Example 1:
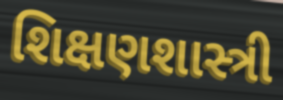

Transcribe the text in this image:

શિક્ષણશાસ્ત્રી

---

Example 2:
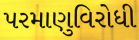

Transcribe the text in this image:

પરમાણુવિરોધી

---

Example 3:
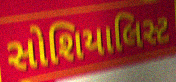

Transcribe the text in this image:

સોશિયાલિસ્ટ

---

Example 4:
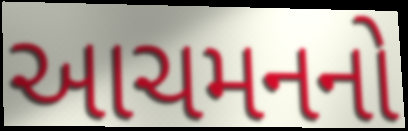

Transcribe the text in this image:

આચમનનો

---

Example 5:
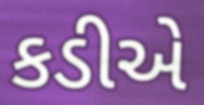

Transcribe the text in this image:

કડીએ